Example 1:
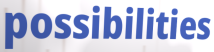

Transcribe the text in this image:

possibilities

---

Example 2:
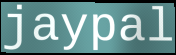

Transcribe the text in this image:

jaypal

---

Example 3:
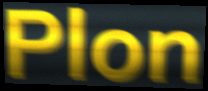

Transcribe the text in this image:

Plon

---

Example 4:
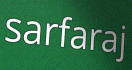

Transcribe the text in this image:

sarfaraj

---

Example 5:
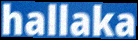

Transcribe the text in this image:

hallaka